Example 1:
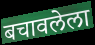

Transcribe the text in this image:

बचावलेला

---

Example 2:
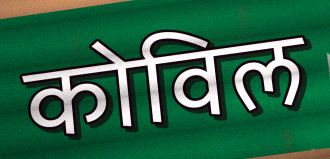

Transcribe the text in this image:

कोविल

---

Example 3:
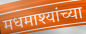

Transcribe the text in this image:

मधमाश्‍यांच्या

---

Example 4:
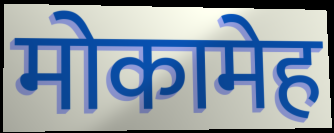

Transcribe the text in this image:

मोकामेह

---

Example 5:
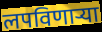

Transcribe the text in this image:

लपविणाऱ्या